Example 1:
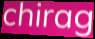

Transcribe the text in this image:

chirag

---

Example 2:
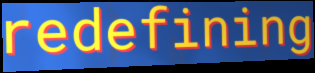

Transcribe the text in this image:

redefining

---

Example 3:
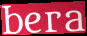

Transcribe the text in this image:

bera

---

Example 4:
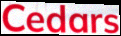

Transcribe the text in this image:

Cedars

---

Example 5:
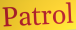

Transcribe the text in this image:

Patrol